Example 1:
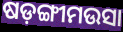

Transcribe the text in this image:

ଷଡ଼ଙ୍ଗୀମଉସା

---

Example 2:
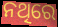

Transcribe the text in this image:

ନଥିରେ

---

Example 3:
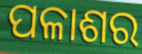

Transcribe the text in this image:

ପଳାଶର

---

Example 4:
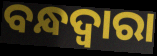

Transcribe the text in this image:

ବନ୍ଧଦ୍ବାରା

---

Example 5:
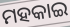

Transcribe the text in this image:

ମହକାଇ